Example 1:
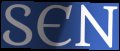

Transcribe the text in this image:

SEN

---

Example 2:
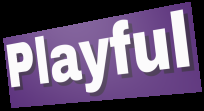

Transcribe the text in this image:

Playful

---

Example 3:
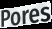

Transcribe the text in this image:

Pores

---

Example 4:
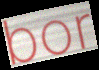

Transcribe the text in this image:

bor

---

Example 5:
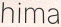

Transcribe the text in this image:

hima